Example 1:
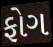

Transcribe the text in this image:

ફોગ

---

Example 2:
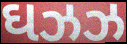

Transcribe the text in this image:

ઘઝઝ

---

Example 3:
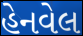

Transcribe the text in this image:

હેનવેલ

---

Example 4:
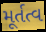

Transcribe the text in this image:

મૂર્તત્વ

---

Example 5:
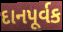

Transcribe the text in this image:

દાનપૂર્વક